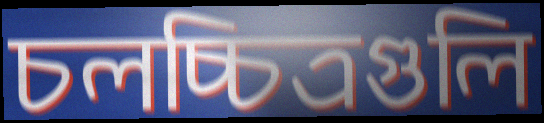
চলচ্চিত্রগুলি